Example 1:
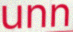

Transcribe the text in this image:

unn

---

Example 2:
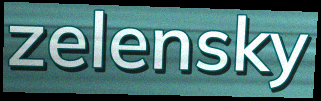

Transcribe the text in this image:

zelensky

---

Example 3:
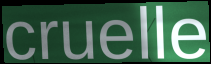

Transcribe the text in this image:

cruelle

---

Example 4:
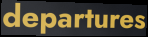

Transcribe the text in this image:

departures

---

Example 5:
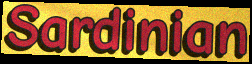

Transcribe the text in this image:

Sardinian